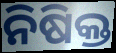
ନିଷିକ୍ତ